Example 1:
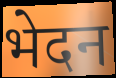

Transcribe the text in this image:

भेदन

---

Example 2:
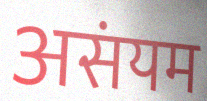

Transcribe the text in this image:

असंयम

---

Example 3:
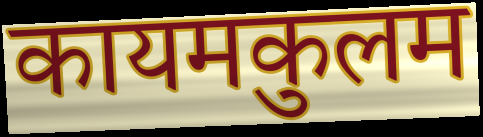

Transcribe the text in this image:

कायमकुलम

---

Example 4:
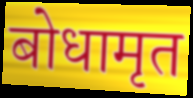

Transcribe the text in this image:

बोधामृत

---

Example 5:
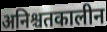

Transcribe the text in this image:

अनिश्चतकालीन